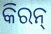
କିରନ୍